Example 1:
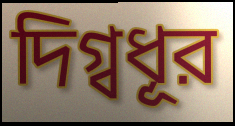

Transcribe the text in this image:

দিগ্বধূর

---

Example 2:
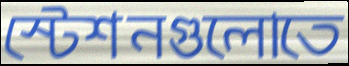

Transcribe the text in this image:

স্টেশনগুলোতে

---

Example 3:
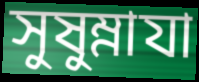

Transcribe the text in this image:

সুষুম্নাযা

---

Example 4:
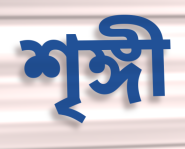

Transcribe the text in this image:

শৃঙ্গী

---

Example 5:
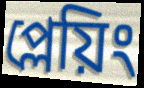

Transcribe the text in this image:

প্লেয়িং